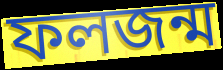
ফলজন্ম